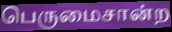
பெருமைசான்ற